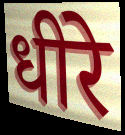
धीरे